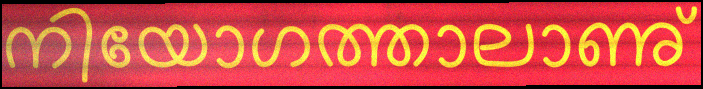
നിയോഗത്താലാണു്